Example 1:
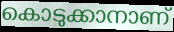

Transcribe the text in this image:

കൊടുക്കാനാണ്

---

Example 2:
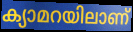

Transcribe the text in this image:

ക്യാമറയിലാണ്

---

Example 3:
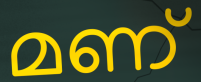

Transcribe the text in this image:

മണ്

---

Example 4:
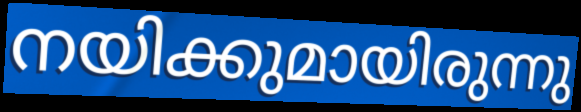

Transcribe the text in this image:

നയിക്കുമായിരുന്നു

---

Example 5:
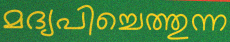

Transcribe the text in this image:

മദ്യപിച്ചെത്തുന്ന